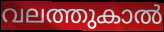
വലത്തുകാൽ